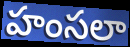
హంసలా